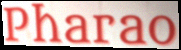
Pharao